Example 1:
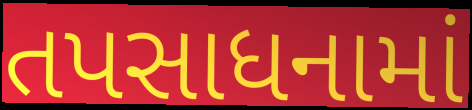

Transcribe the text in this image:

તપસાધનામાં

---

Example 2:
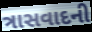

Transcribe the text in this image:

ત્રાસવાદની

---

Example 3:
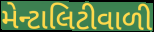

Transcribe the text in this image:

મેન્ટાલિટીવાળી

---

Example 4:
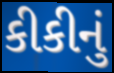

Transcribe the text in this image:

કીકીનું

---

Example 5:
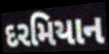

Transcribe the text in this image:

દરમિયાન